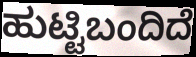
ಹುಟ್ಟಿಬಂದಿದೆ